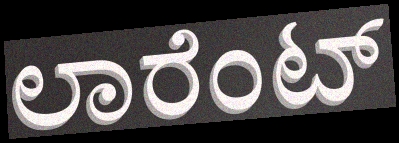
ಲಾರೆಂಟ್